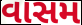
વાસમ